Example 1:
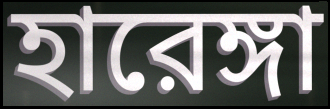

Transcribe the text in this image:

হারেঙ্গা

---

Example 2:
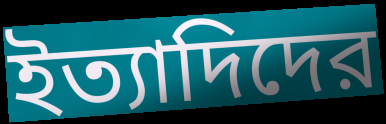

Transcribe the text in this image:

ইত্যাদিদের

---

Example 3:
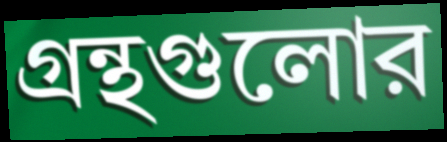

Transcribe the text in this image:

গ্রন্থগুলোর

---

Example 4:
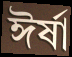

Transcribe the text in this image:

ঈর্ষা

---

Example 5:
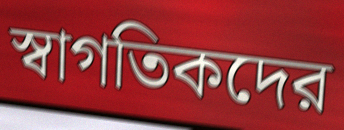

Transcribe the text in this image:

স্বাগতিকদের